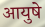
आयुषे